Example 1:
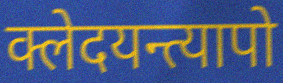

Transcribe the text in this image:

क्लेदयन्त्यापो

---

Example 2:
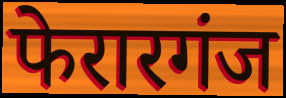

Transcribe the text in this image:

फेरारगंज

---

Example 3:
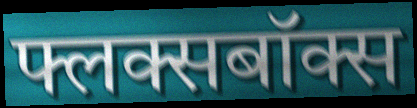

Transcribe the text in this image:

फ्लक्सबॉक्स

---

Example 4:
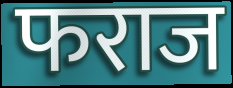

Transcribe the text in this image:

फराज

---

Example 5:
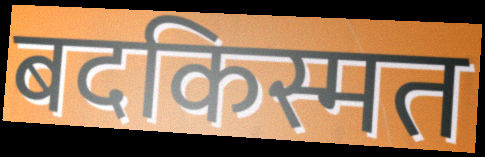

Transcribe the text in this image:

बदकिस्‍मत